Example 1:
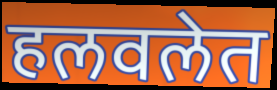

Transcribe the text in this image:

हलवलेत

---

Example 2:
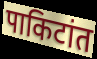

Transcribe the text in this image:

पाकिटांत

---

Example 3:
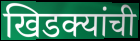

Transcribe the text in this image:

खिडक्यांची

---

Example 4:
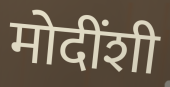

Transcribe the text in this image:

मोदींशी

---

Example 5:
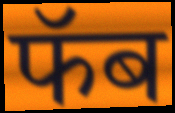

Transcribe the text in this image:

फॅब